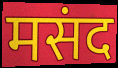
मसंद